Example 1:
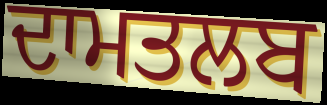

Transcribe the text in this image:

ਦਾਮਤਲਬ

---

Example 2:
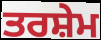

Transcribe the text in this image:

ਤਰਸ਼ੇਮ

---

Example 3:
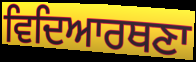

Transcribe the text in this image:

ਵਿਦਿਆਰਥਣਾ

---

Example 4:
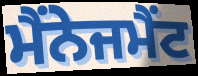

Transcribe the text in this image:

ਮੈਂਨੇਜਮੈਂਟ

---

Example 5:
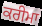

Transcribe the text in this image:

ਕਰੀਮਾ